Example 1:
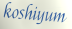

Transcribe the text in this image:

koshiyum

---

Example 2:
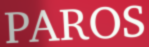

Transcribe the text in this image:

PAROS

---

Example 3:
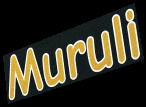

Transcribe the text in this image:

Muruli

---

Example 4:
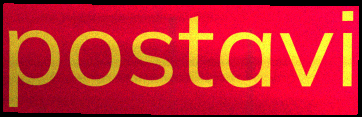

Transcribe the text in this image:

postavi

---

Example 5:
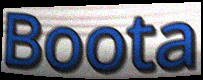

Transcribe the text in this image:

Boota